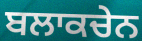
ਬਲਾਕਚੇਨ